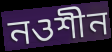
নওশীন